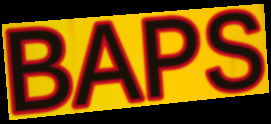
BAPS